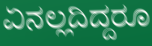
ಏನಲ್ಲದಿದ್ದರೂ